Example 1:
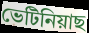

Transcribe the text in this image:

ভেটিনিয়াছ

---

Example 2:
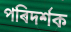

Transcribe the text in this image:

পৰিদৰ্শক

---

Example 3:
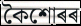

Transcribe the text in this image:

কৈশোৰৰ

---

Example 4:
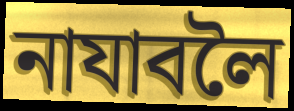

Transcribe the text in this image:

নাযাবলৈ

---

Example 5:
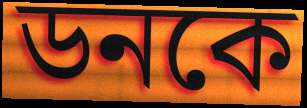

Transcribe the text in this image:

ডনকে